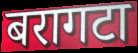
बरागटा